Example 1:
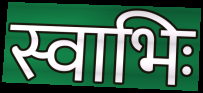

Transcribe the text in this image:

स्वाभिः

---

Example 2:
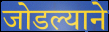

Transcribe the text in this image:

जोडल्याने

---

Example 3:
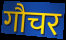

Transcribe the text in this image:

गौचर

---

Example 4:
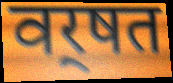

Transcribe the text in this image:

वर्षत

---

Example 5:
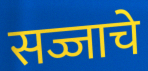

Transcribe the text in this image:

सज्जाचे